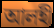
আলহী